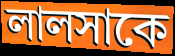
লালসাকে